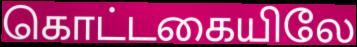
கொட்டகையிலே